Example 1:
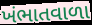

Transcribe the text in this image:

ખંભાતવાળા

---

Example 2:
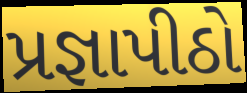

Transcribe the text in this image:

પ્રજ્ઞાપીઠો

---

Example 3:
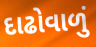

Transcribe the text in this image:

દાઢોવાળું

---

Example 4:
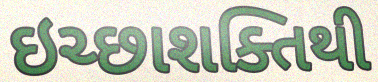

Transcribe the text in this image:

ઇચ્છાશક્તિથી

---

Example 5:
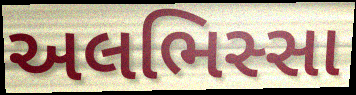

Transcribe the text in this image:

અલભિસ્સા